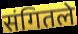
संगितले